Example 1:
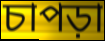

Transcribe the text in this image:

চাপড়া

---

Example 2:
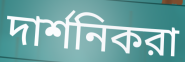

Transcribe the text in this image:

দার্শনিকরা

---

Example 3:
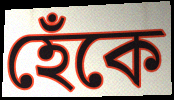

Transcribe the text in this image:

হেঁকে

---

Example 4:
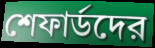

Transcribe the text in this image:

শেফার্ডদের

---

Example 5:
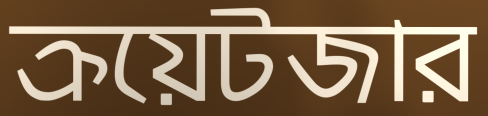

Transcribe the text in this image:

ক্রয়েটজার